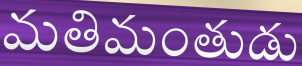
మతిమంతుడు